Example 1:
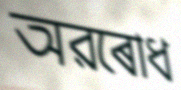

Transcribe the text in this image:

অৱৰোধ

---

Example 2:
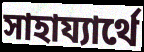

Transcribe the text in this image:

সাহায্যাৰ্থে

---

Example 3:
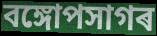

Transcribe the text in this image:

বঙ্গোপসাগৰ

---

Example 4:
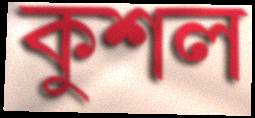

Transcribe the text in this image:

কুশল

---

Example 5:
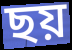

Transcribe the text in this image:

ছয়